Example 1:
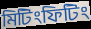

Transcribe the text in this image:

মিটিংফিটিং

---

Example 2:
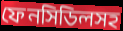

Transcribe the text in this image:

ফেনসিডিলসহ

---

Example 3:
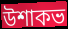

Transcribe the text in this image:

উশাকভ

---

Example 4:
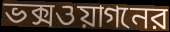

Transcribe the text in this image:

ভক্সওয়াগনের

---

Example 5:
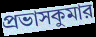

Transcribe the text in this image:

প্রভাসকুমার